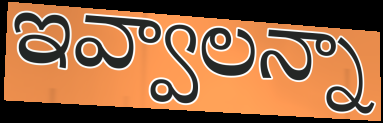
ఇవ్వాలన్నా